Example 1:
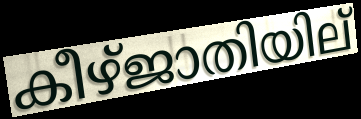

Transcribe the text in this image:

കീഴ്ജാതിയില്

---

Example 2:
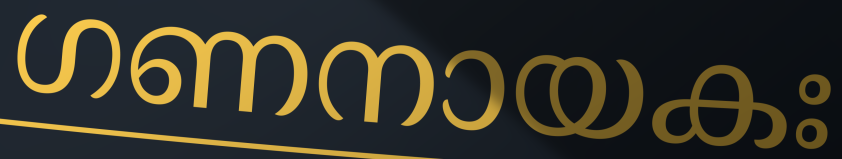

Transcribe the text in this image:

ഗണനായകഃ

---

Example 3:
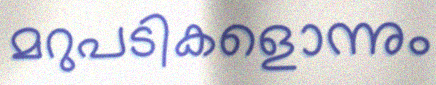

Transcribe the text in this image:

മറുപടികളൊന്നും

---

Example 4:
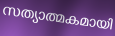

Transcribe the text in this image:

സത്യാത്മകമായി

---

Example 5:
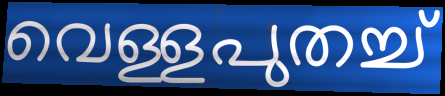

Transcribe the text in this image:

വെള്ളപുതച്ച്